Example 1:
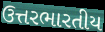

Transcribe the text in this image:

ઉત્તરભારતીય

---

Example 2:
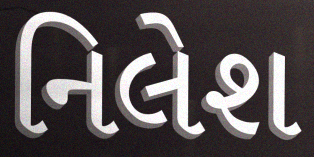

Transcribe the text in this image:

નિલેશ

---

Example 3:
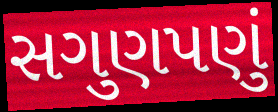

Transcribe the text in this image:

સગુણપણું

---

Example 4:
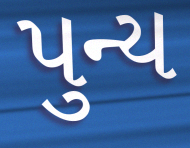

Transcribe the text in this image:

પુન્ય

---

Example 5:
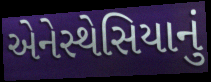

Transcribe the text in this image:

એનેસ્થેસિયાનું